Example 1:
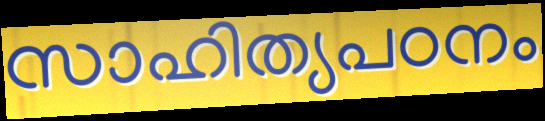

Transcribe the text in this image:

സാഹിത്യപഠനം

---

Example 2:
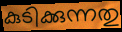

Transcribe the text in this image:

കുടിക്കുന്നതു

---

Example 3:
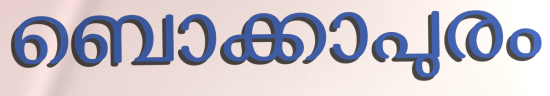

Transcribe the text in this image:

ബൊക്കാപുരം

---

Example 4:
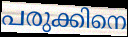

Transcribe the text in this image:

പരുക്കിനെ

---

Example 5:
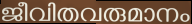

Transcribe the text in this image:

ജീവിതവരുമാനം